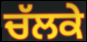
ਚੱਲਕੇ